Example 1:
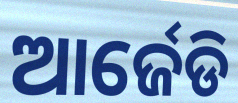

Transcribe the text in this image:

ଆର୍ଜେଡି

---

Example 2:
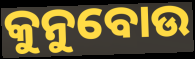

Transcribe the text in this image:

କୁନୁବୋଉ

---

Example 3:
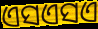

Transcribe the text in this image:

ଏସଏସଏ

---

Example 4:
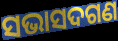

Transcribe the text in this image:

ସଭାସଦଗଣ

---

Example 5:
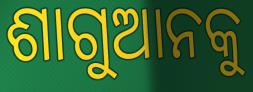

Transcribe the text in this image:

ଶାଗୁଆନକୁ